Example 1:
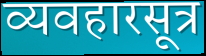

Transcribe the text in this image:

व्यवहारसूत्र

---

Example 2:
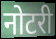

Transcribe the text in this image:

नोटरी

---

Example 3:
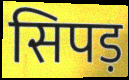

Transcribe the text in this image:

सिपड़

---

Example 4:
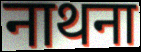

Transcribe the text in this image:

नाथना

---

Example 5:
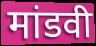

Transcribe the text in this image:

मांडवी